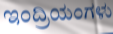
ಇಂದ್ರಿಯಂಗಳು